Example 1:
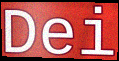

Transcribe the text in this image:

Dei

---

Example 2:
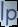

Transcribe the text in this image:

lp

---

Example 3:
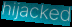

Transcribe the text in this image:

hijacked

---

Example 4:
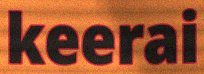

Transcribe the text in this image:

keerai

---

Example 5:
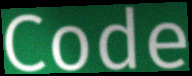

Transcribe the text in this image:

Code